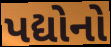
પદ્યોનો